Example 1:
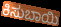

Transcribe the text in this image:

ಕಿಸುಬಾಯಿ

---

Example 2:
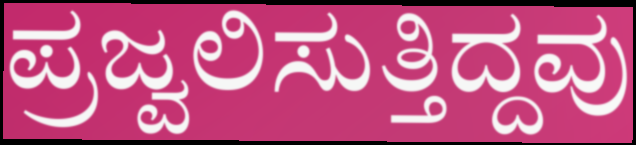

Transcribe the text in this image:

ಪ್ರಜ್ವಲಿಸುತ್ತಿದ್ದವು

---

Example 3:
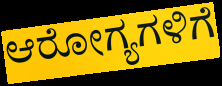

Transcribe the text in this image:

ಆರೋಗ್ಯಗಳಿಗೆ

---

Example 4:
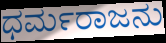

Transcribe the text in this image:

ಧರ್ಮರಾಜನು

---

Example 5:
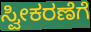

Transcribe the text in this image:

ಸ್ವೀಕರಣೆಗೆ